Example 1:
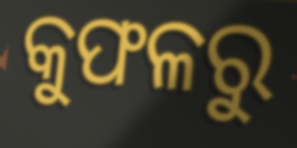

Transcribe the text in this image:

କୁଫଳରୁ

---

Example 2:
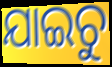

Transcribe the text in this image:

ଯାଇଚୁ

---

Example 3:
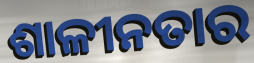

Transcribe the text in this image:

ଶାଳୀନତାର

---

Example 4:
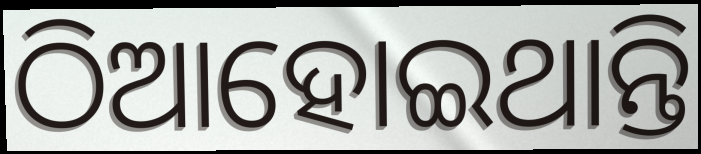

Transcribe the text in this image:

ଠିଆହୋଇଥାନ୍ତି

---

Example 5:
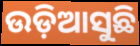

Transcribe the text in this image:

ଉଡ଼ିଆସୁଛି